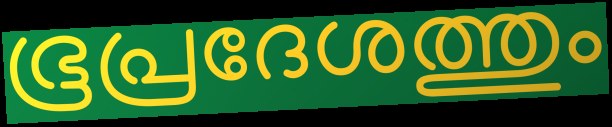
ഭൂപ്രദേശത്തും